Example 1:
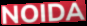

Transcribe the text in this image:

NOIDA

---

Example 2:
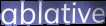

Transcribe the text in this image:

ablative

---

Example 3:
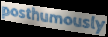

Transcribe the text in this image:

posthumously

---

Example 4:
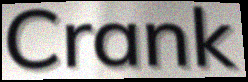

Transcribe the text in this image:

Crank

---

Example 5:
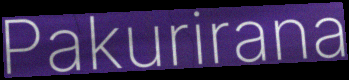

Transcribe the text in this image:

Pakurirana